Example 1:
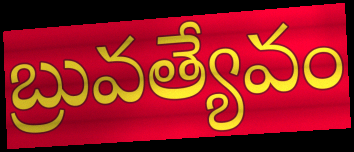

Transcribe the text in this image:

బ్రువత్యేవం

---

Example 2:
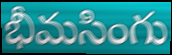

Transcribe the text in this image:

భీమసింగు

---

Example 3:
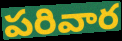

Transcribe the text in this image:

పరివార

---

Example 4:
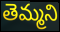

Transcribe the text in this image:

తెమ్మని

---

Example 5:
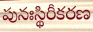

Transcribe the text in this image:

పునఃస్థిరీకరణ